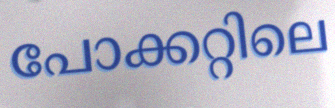
പോക്കറ്റിലെ